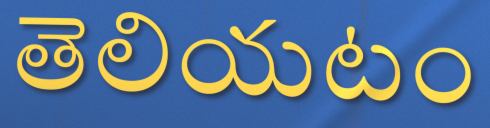
తెలియటం